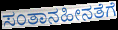
ಸಂತಾನಹೀನತೆಗೆ